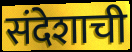
संदेशाची